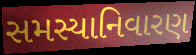
સમસ્યાનિવારણ